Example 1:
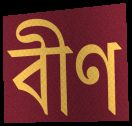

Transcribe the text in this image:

বীণ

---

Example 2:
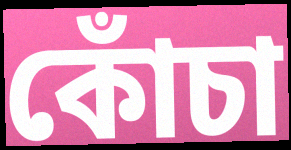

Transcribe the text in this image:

কোঁচা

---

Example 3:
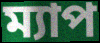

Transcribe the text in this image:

ম্যাপ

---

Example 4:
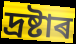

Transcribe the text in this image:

দ্ৰষ্টাৰ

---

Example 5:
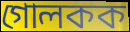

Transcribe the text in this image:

গোলকক